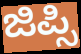
ಜಿಪ್ಸಿ